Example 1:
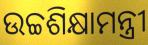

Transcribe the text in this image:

ଉଚ୍ଚଶିକ୍ଷାମନ୍ତ୍ରୀ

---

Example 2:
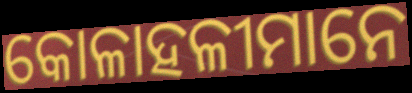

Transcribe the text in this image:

କୋଳାହଳୀମାନେ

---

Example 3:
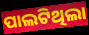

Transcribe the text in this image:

ପାଲଟିଥିଲା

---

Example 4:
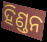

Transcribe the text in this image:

ହିଣ୍ଡନ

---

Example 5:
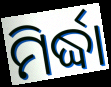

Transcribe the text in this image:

ମିର୍ଦ୍ଧା